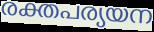
രക്തപര്യയന